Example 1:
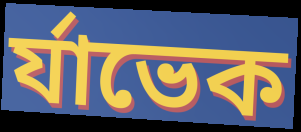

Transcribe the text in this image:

র্যাভেক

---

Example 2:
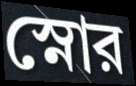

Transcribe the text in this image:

স্নোর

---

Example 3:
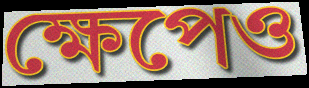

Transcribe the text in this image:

ক্ষেপেও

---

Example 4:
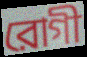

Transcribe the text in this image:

রোগী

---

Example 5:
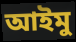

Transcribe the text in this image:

আইমু